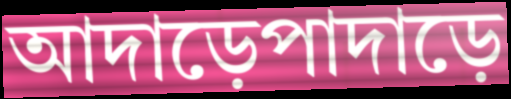
আদাড়েপাদাড়ে